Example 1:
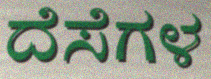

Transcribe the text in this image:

ದೆಸೆಗಳ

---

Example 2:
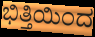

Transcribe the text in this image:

ಭಿತ್ತಿಯಿಂದ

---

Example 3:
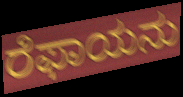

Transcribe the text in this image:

ರೆಫಾಯನು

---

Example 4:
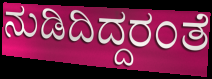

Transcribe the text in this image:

ನುಡಿದಿದ್ದರಂತೆ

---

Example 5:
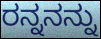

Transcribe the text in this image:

ರನ್ನನನ್ನು